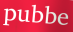
pubbe